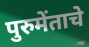
पुरुमेंताचे